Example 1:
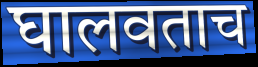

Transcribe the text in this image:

घालवताच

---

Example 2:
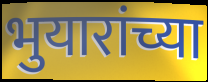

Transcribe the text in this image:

भुयारांच्या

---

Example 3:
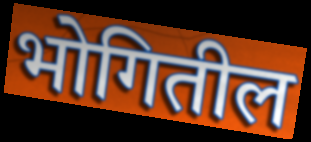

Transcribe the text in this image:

भोगितील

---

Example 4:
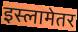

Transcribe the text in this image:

इस्लामेतर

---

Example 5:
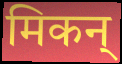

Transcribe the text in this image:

मिकन्